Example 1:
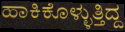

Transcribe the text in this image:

ಹಾಕಿಕೊಳ್ಳುತ್ತಿದ್ದ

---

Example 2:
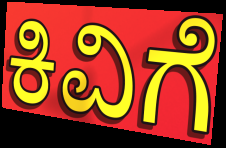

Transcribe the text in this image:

ಕಿವಿಗೆ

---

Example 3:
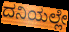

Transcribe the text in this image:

ದನಿಯಲ್ಲೇ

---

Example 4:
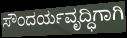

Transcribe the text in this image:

ಸೌಂದರ್ಯವೃದ್ಧಿಗಾಗಿ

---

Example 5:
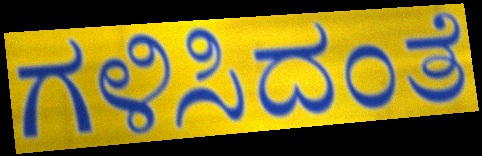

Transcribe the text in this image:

ಗಳಿಸಿದಂತೆ